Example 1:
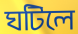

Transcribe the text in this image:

ঘটিলে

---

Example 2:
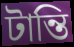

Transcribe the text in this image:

টান্তি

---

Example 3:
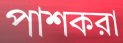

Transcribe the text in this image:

পাশকরা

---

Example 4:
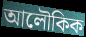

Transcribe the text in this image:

আলৌকিক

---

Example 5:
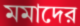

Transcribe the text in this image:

মমাদের